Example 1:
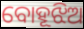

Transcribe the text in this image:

ବୋହୂଝିଅ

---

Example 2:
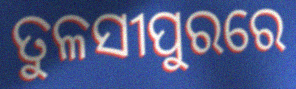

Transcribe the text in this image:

ତୁଳସୀପୁରରେ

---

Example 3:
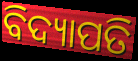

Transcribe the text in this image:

ବିଦ୍ୟାପତି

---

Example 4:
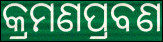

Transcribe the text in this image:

କ୍ରମଣପ୍ରବଣ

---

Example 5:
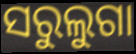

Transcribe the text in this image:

ସରୁଲୁଗା